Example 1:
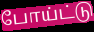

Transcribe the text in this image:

போய்ட்டு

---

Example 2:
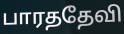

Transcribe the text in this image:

பாரததேவி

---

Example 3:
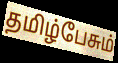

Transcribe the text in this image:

தமிழ்பேசும்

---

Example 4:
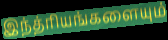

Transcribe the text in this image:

இந்த்ரியங்களையும்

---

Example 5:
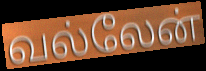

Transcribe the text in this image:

வல்லேன்